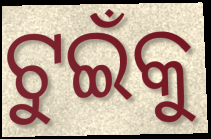
ଟୁଇଁକୁ